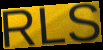
RLS